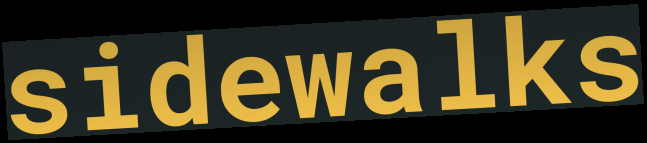
sidewalks